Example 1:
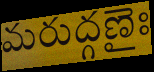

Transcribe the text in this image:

మరుద్గణైః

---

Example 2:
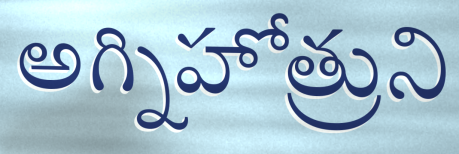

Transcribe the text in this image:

అగ్నిహోత్రుని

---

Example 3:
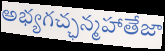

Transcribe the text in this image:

అభ్యగచ్ఛన్మహాతేజా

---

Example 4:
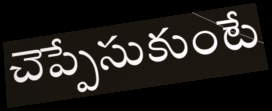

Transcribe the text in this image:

చెప్పేసుకుంటే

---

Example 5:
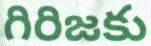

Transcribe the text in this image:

గిరిజకు